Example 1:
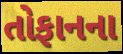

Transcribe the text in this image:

તોફાનના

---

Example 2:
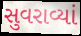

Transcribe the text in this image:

સુવરાવ્યાં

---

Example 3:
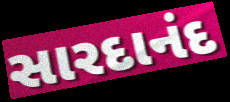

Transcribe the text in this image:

સારદાનંદ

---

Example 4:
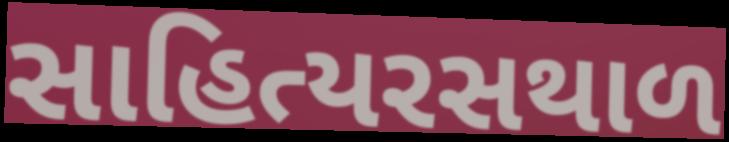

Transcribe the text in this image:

સાહિત્યરસથાળ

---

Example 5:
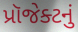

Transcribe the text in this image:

પ્રૉજેક્ટનું